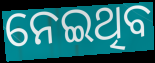
ନେଇଥିବ